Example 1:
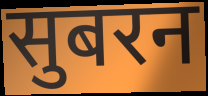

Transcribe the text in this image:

सुबरन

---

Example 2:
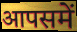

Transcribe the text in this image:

आपसमें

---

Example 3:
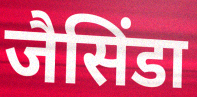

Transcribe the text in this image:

जैसिंडा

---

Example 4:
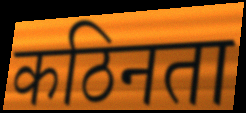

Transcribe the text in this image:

कठिनता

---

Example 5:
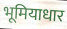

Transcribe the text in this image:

भूमियाधार